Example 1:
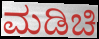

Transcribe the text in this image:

ಮಡಿಚಿ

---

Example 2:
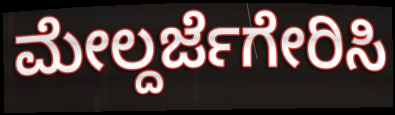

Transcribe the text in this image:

ಮೇಲ್ದರ್ಜೆಗೇರಿಸಿ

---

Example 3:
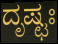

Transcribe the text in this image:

ದೃಷ್ಟಃ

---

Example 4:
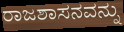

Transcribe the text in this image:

ರಾಜಶಾಸನವನ್ನು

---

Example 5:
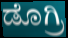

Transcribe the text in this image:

ಡೊಗ್ರಿ